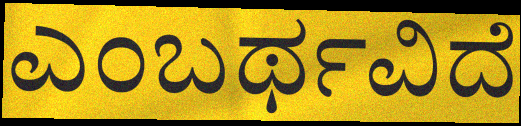
ಎಂಬರ್ಥವಿದೆ